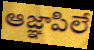
ఆజ్ఞాపిలే